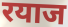
रयाज